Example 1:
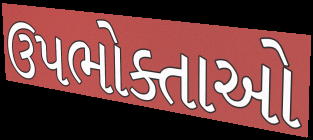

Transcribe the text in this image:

ઉપભોક્તાઓ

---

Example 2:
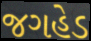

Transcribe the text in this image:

જગહેડ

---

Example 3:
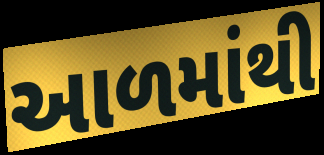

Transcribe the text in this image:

આળમાંથી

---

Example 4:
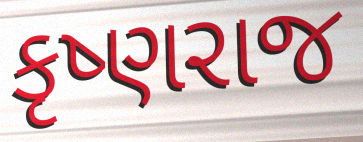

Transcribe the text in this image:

કૃષ્ણરાજ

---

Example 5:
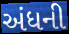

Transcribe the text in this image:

અંધની